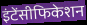
इंटेंसीफिकेशन